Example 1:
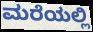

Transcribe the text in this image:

ಮರೆಯಲ್ಲಿ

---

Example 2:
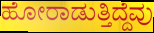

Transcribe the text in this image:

ಹೋರಾಡುತ್ತಿದ್ದೆವು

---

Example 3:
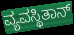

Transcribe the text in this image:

ವ್ಯವಸ್ಥಿತಾನ್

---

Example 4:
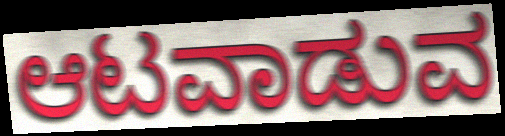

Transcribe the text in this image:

ಆಟವಾಡುವ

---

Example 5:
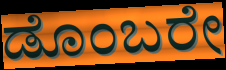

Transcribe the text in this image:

ಡೊಂಬರೇ